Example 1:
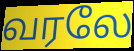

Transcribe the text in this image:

வரலே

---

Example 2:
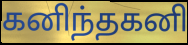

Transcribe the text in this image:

கனிந்தகனி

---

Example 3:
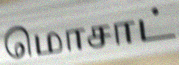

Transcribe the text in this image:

மொசாட்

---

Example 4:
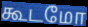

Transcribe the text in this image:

கூடமோ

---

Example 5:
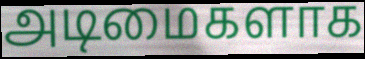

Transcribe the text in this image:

அடிமைகளாக